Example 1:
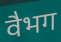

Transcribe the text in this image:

वैभग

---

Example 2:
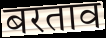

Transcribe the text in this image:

बरताव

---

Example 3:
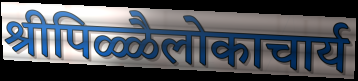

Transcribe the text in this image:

श्रीपिळ्ळैलोकाचार्य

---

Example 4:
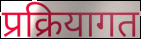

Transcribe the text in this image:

प्रक्रियागत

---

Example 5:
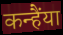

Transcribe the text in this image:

कन्हैंया